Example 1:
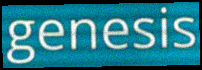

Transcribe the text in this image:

genesis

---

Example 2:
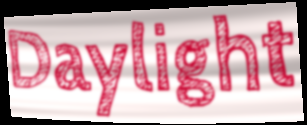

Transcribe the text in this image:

Daylight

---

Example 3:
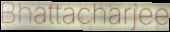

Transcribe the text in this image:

Bhattacharjee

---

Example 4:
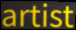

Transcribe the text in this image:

artist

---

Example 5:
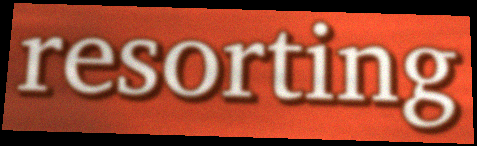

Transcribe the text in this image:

resorting